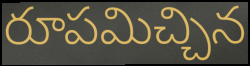
రూపమిచ్చిన